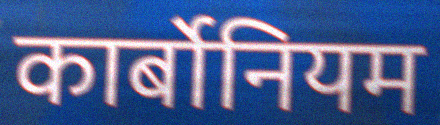
कार्बोनियम